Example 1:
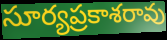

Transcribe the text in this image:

సూర్యప్రకాశరావు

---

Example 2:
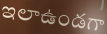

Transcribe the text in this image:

ఇలాఉండగా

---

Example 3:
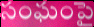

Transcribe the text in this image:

సంఘంపై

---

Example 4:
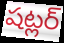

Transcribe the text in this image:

షట్లర్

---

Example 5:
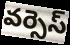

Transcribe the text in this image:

వర్సెస్